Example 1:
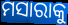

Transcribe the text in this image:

ମସାରାକୁ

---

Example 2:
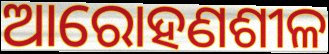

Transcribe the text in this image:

ଆରୋହଣଶୀଳ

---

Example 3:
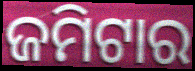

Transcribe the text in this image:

ଜମିଟାର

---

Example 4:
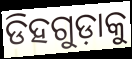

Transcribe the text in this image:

ଡିହଗୁଡ଼ାକୁ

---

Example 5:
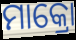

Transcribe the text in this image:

ମାକ୍ରୋ